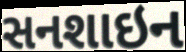
સનશાઇન